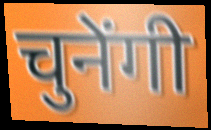
चुनेंगी